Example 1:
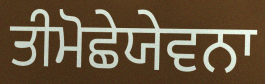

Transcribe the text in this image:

ਤੀਮੋਛੇਯੇਵਨਾ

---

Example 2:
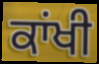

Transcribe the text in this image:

ਕਾਂਖੀ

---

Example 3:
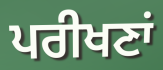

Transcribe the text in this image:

ਪਰੀਖਣਾਂ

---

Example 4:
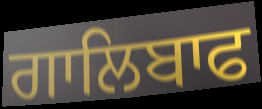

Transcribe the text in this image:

ਗਾਲਿਬਾਫ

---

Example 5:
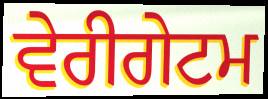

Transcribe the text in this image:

ਵੇਰੀਗੇਟਮ